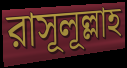
রাসূলূল্লাহ